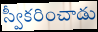
స్వీకరించాడు